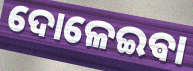
ଦୋଳେଇଵା